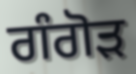
ਗੰਗੋੜ